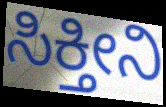
ಸಿಕ್ತೀನಿ